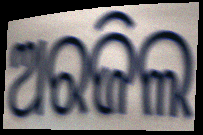
ଅରଜିଲ